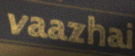
vaazhai